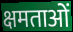
क्षमताओं